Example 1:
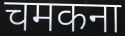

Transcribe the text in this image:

चमकना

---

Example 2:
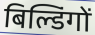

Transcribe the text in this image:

बिल्डिंगों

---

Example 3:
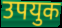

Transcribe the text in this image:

उपयुक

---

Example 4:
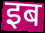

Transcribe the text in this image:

इब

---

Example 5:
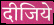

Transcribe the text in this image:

दीजिये